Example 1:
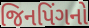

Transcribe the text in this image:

જિનપિંગનો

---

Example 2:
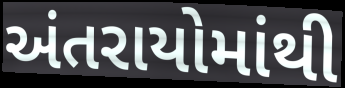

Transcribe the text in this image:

અંતરાયોમાંથી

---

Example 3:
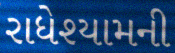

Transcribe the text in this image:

રાધેશ્યામની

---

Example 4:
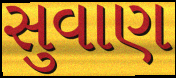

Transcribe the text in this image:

સુવાણ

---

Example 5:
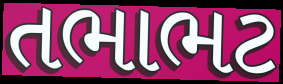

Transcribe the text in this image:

તભાભટ